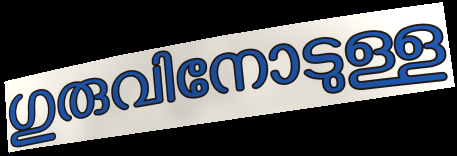
ഗുരുവിനോടുള്ള